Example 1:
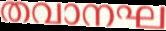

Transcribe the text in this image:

തവാനഘ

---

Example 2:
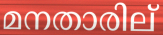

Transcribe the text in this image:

മനതാരില്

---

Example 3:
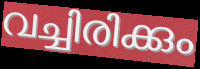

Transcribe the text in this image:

വച്ചിരിക്കും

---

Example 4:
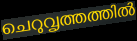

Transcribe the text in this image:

ചെറുവൃത്തത്തിൽ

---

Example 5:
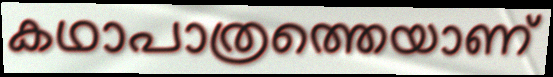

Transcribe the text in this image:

കഥാപാത്രത്തെയാണ്